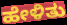
ಹೇಳಿತು